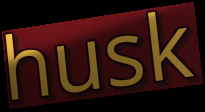
husk